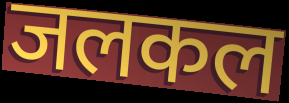
जलकल